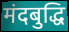
मंदबुद्धि